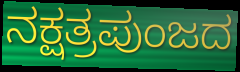
ನಕ್ಷತ್ರಪುಂಜದ